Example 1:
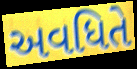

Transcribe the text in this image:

અવધિતે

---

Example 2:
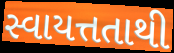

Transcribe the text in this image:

સ્વાયત્તતાથી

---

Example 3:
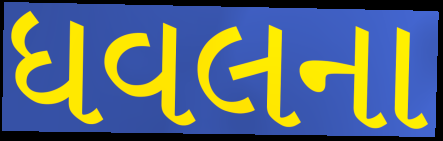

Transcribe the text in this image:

ધવલના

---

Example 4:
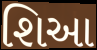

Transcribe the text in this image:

શિઆ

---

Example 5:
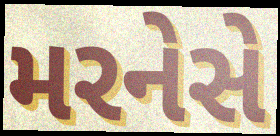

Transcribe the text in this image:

મરનેસે